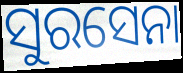
ସୁରସେନା